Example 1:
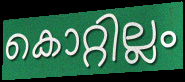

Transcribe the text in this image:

കൊറ്റില്ലം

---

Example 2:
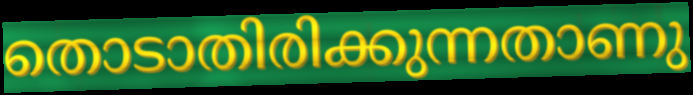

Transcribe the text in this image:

തൊടാതിരിക്കുന്നതാണു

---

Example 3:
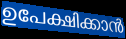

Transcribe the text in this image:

ഉപേക്ഷിക്കാൻ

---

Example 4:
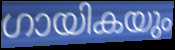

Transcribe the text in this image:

ഗായികയും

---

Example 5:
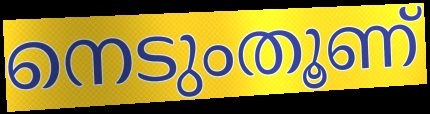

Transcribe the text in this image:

നെടുംതൂണ്